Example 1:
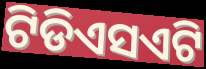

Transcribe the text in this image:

ଟିଡିଏସଏଟି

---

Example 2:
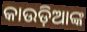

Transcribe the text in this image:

କାଉଡ଼ିଆଙ୍କ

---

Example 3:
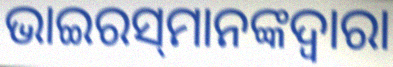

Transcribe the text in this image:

ଭାଇରସ୍‌ମାନଙ୍କଦ୍ୱାରା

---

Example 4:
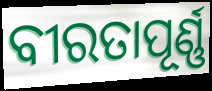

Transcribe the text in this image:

ବୀରତାପୂର୍ଣ୍ଣ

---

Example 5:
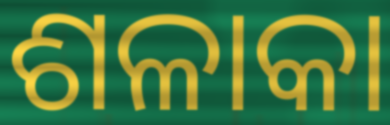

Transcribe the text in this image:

ଶଳାକା